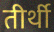
तीर्थी